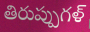
తిరుప్పుగళ్